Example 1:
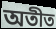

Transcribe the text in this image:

অতীত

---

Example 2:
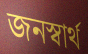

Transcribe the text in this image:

জনস্বার্থ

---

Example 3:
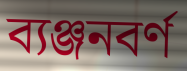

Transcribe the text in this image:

ব্যঞ্জনবর্ণ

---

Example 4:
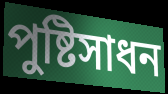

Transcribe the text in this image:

পুষ্টিসাধন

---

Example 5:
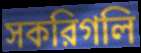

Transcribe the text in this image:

সকরিগলি